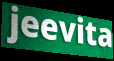
jeevita